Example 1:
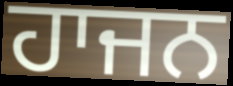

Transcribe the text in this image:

ਹਾਜਨ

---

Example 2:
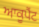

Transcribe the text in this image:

ਆਕੂਪੈਂਟ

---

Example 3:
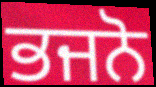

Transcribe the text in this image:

ਭਜਨੋ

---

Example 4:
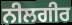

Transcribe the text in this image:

ਨੀਲਗੀਰ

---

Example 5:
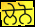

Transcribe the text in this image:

ਲੇਨੋ